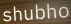
shubho